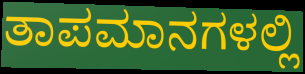
ತಾಪಮಾನಗಳಲ್ಲಿ